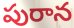
పురాన